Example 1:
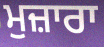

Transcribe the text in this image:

ਮੁਜ਼ਾਰਾ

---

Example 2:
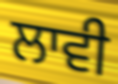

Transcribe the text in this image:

ਲਾਵੀ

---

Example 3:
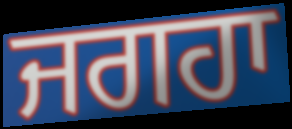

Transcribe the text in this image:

ਜਗਹਾ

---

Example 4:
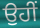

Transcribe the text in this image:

ਉਹੀਂ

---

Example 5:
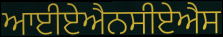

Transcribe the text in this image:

ਆਈਏਐਨਸੀਏਐਸ